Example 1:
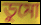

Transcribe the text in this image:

ডুমো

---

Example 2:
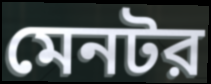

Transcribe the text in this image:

মেনটর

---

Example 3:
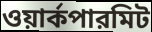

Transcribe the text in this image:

ওয়ার্কপারমিট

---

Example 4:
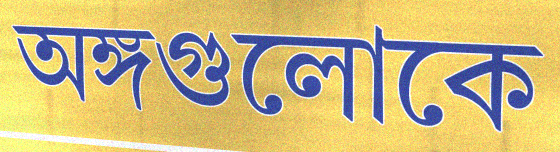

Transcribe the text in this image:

অঙ্গগুলোকে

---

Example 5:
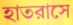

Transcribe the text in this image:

হাতরাসে